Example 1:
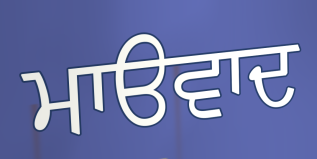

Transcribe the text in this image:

ਮਾੳਵਾਦ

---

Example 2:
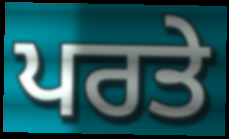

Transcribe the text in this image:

ਪਰਤੇ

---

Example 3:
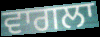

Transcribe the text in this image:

ਵਾਗਲਾ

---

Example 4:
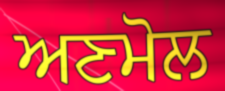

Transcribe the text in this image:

ਅਣਮੋਲ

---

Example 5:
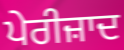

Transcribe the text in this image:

ਪੇਰੀਜ਼ਾਦ